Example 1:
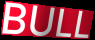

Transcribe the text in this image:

BULL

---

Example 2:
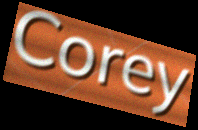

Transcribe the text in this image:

Corey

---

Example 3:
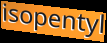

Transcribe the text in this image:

isopentyl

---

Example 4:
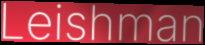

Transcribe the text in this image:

Leishman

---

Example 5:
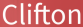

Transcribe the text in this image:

Clifton